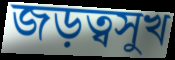
জড়ত্বসুখ